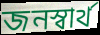
জনস্বার্থ